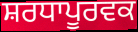
ਸ਼ਰਧਾਪੂਰਵਕ